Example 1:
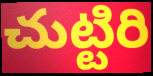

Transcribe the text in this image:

చుట్టిరి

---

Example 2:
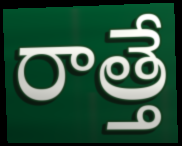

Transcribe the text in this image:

రాత్తే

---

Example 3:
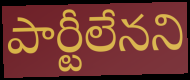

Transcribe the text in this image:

పార్టీలేనని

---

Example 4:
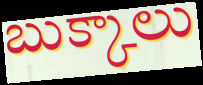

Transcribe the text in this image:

బుక్కాలు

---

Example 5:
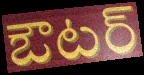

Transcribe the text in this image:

ఔటర్